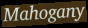
Mahogany